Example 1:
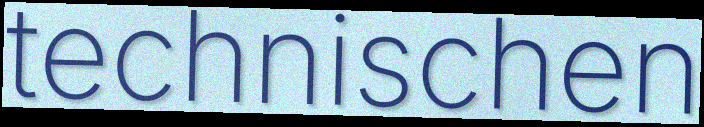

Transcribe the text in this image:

technischen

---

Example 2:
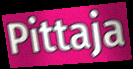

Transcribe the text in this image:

Pittaja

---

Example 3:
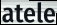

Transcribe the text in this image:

atele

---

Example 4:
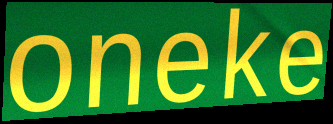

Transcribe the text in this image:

oneke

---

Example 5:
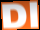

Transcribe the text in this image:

Dl